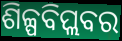
ଶିଳ୍ପବିପ୍ଲବର